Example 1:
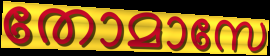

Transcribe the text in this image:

തോമാസേ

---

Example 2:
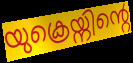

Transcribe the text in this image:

യുക്രെയ്നിന്റെ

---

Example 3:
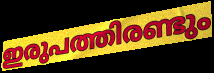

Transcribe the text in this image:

ഇരുപത്തിരണ്ടും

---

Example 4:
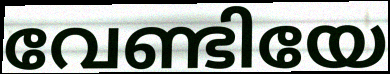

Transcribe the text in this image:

വേണ്ടിയേ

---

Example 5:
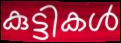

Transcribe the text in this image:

കുട്ടികൾ